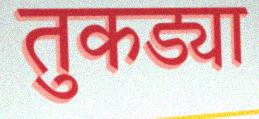
तुकड्या